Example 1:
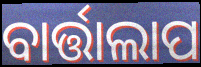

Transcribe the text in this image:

ବାର୍ତ୍ତାଲାପ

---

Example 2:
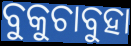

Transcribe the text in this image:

ବୁକୁଚାବୁହା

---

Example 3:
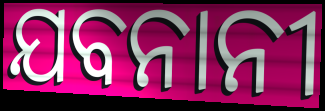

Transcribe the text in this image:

ଯବନାନୀ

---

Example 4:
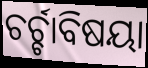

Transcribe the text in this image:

ଚର୍ଚ୍ଚାବିଷୟା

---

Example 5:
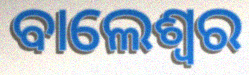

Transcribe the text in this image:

ବାଲେଶ୍ବର